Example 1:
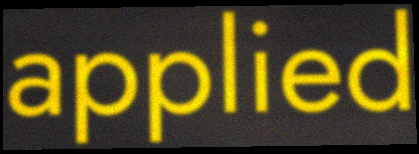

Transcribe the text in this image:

applied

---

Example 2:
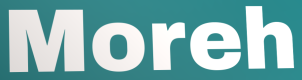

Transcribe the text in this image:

Moreh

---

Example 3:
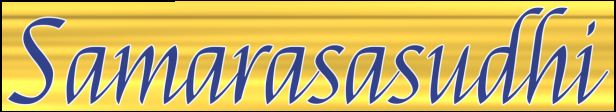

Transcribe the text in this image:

Samarasasudhi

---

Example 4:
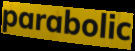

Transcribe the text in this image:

parabolic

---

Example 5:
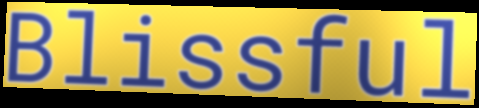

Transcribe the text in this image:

Blissful